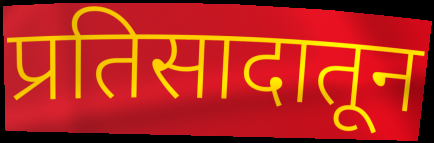
प्रतिसादातून